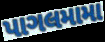
પાગલમામા